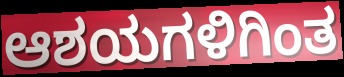
ಆಶಯಗಳಿಗಿಂತ